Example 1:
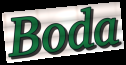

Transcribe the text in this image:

Boda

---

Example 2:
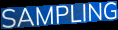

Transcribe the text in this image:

SAMPLING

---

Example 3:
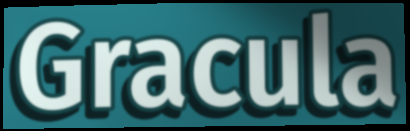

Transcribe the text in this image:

Gracula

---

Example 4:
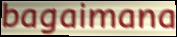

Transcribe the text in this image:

bagaimana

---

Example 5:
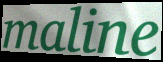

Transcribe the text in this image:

maline